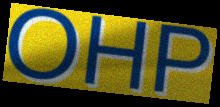
OHP